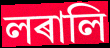
লৰালি